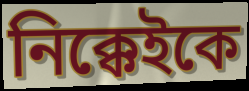
নিক্কেইকে